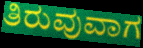
ತಿರುವುವಾಗ